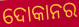
ଦୋକାନର